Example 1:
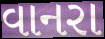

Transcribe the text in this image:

વાનરા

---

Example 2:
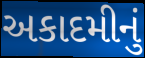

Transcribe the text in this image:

અકાદમીનું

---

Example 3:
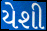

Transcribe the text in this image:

યેશી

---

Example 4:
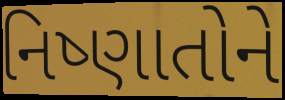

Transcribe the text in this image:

નિષ્ણાતોને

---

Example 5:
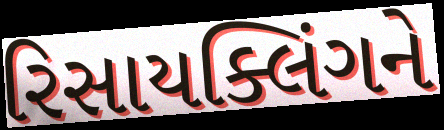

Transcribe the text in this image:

રિસાયક્લિંગને